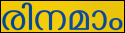
രിനമാം